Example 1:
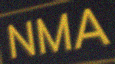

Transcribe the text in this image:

NMA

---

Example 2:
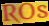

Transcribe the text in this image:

ROs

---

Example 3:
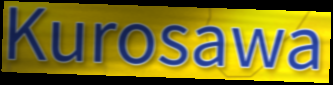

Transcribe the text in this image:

Kurosawa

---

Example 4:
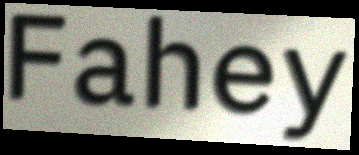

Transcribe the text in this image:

Fahey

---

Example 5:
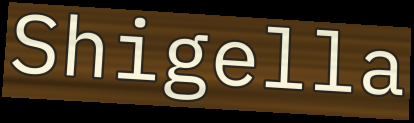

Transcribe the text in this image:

Shigella